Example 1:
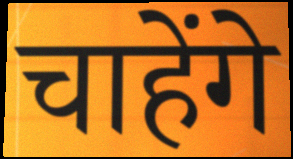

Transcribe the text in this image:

चाहेंगे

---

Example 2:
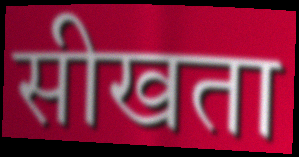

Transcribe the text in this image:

सीखता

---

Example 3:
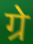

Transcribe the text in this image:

ग्रे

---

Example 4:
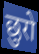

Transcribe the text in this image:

छुरो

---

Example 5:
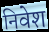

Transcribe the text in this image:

निवेश